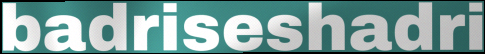
badriseshadri